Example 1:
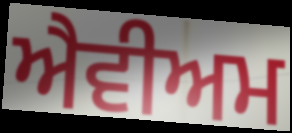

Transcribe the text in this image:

ਐਵੀਅਮ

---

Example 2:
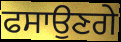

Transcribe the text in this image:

ਫਸਾਉਣਗੇ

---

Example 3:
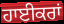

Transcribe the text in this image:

ਹਾਈਕਰਾਂ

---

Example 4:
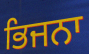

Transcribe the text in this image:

ਭਿਜਨਾ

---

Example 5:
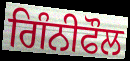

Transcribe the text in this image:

ਗਿੰਨੀਫੌਲ